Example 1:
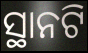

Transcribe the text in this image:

ସ୍ଥାନଟି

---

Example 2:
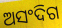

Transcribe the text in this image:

ଅସଂଦିଗ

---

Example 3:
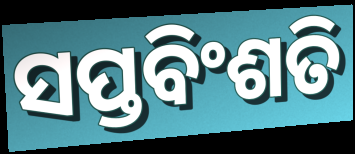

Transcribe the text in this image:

ସପ୍ତବିଂଶତି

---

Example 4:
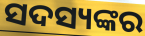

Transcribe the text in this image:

ସଦସ୍ୟଙ୍କର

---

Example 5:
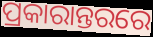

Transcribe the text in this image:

ପ୍ରକାରାନ୍ତରରେ